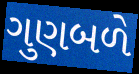
ગુણબળે